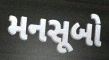
મનસૂબો